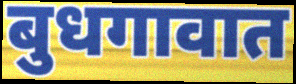
बुधगावात